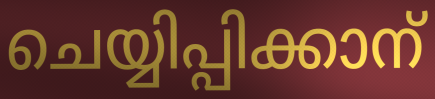
ചെയ്യിപ്പിക്കാന്